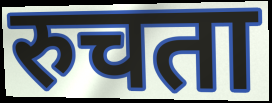
रुचता